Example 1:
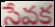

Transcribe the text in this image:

సేవక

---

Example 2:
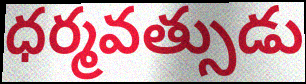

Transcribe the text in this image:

ధర్మవత్సుడు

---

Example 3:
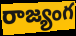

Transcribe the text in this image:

రాజ్యంగ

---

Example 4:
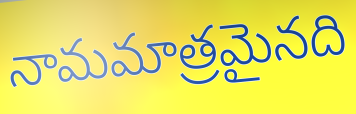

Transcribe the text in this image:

నామమాత్రమైనది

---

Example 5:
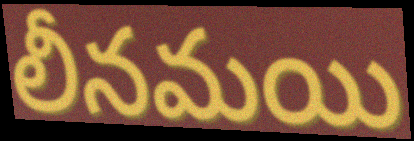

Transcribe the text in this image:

లీనమయి